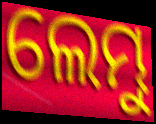
ଲେମ୍ଭୁ